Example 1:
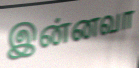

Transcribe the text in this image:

இன்னவா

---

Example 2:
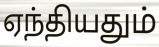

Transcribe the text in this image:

ஏந்தியதும்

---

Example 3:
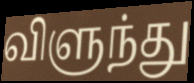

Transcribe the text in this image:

விளுந்து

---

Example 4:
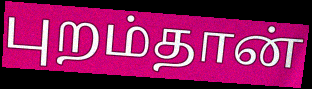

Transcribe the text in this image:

புறம்தான்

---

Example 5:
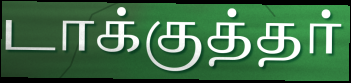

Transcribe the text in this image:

டாக்குத்தர்